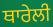
ਥਾਰੇਲੀ